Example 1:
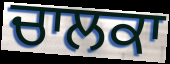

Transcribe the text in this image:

ਚਾਲਕਾ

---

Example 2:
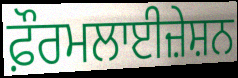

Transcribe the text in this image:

ਫ਼ੌਰਮਲਾਈਜ਼ੇਸ਼ਨ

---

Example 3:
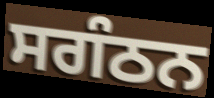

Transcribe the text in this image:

ਸਗੰਠਨ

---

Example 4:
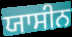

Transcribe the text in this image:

ਯਾਸੀਨ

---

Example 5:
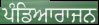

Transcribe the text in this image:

ਪੰਡਿਆਰਾਜਨ